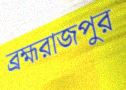
ব্রহ্মরাজপুর